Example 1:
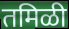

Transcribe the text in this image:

तमिळी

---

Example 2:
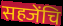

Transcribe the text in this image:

सहजेंचि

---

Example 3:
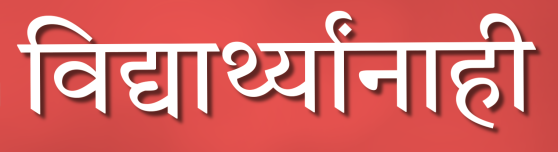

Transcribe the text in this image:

विद्यार्थ्यांनाही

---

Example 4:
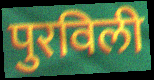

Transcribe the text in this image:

पुरविली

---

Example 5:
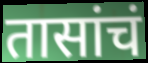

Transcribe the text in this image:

तासांचं